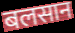
बलसान